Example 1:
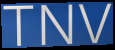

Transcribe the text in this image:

TNV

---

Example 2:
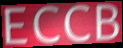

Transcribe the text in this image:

ECCB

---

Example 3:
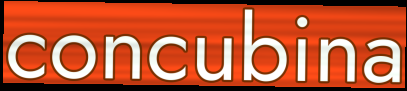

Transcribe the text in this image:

concubina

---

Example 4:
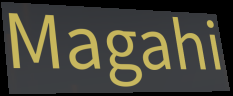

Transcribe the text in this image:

Magahi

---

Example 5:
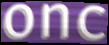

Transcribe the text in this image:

onc